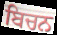
ਬਿਚਨ